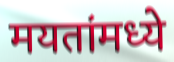
मयतांमध्ये